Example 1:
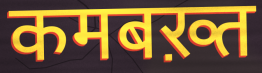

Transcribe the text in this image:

कमबख़्त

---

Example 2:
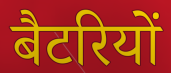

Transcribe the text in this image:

बैटरियों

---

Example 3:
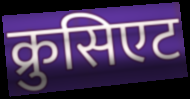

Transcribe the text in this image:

क्रुसिएट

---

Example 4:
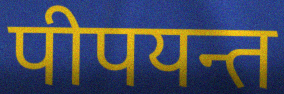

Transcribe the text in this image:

पीपयन्त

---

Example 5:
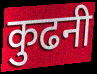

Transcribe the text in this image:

कुढनी